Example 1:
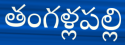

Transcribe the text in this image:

తంగళ్లపల్లి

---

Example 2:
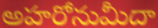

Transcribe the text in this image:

అహరోనుమీదా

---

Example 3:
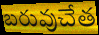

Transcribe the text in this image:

బరువుచేత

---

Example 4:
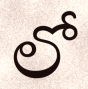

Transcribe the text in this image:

లో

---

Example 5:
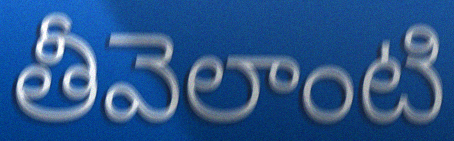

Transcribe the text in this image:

తీవెలాంటి